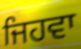
ਜਿਹਵਾ